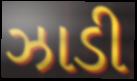
ઝાડી